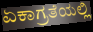
ಏಕಾಗ್ರತೆಯಲ್ಲಿ